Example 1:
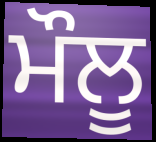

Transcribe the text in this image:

ਮੌਲੂ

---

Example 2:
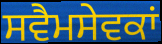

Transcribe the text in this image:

ਸਵੈਮਸੇਵਕਾਂ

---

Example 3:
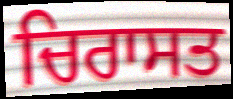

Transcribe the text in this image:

ਚਿਰਾਸਤ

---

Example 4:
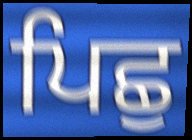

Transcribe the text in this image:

ਪਿਛੁ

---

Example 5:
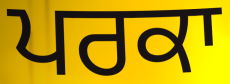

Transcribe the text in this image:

ਪਰਕਾ